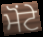
ਮੋਂਟੇ